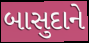
બાસુદાને